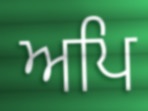
ਅਪਿ